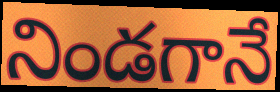
నిండగానే